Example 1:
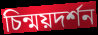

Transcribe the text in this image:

চিন্ময়দর্শন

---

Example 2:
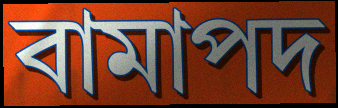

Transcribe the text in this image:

বামাপদ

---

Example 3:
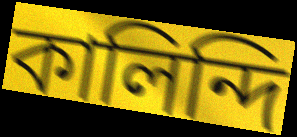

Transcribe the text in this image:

কালিন্দি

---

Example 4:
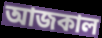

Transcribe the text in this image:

আজকাল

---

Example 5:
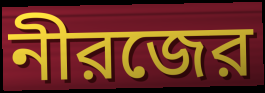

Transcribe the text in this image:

নীরজের